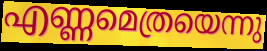
എണ്ണമെത്രയെന്നു